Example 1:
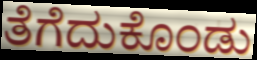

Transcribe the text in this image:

ತೆಗೆದುಕೊಂಡು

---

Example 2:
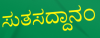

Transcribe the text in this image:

ಸುತಸದ್ದಾನಂ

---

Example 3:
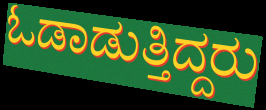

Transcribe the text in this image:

ಓಡಾಡುತ್ತಿದ್ದರು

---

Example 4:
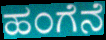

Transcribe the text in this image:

ಹಂಗೆನೆ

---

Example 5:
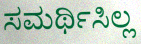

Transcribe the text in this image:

ಸಮರ್ಥಿಸಿಲ್ಲ